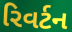
રિવર્ટન